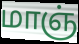
மாஞ்